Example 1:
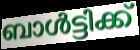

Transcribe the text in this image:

ബാൾട്ടിക്ക്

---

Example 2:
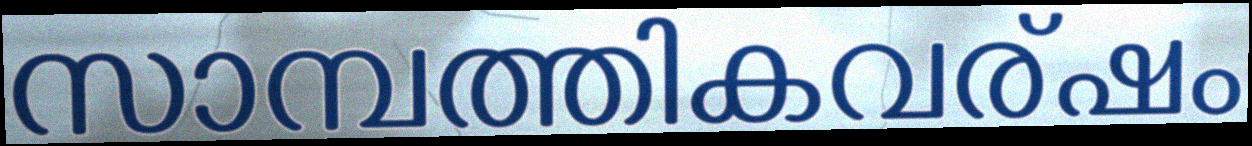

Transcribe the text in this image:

സാമ്പത്തികവര്ഷം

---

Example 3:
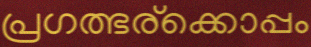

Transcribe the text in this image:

പ്രഗത്ഭര്ക്കൊപ്പം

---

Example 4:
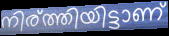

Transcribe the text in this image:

നിര്ത്തിയിട്ടാണ്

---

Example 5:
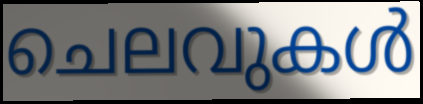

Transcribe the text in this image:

ചെലവുകൾ